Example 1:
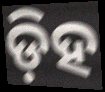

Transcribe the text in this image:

ଡ଼ିହ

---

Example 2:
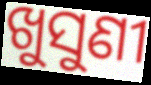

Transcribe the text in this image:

ଖୁସୁଣୀ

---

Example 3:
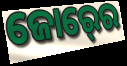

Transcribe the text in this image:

ଜୋର୍‍ରେ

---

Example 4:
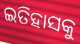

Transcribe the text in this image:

ଇତିହାସକୁ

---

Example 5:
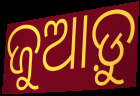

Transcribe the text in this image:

ଜୁଆଡ଼ୁ